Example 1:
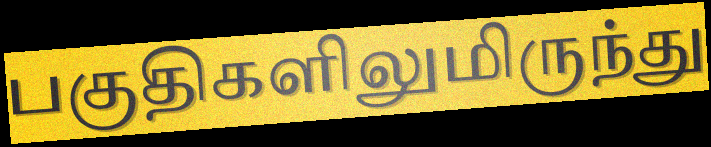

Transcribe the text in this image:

பகுதிகளிலுமிருந்து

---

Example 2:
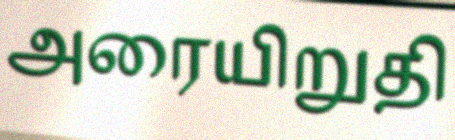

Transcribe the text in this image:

அரையிறுதி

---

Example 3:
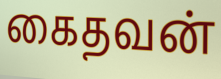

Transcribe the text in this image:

கைதவன்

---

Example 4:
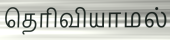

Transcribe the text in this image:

தெரிவியாமல்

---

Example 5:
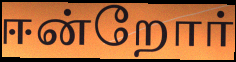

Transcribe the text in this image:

ஈன்றோர்